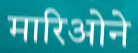
मारिओने